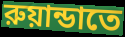
রুয়ান্ডাতে